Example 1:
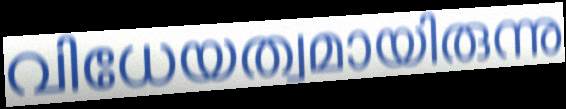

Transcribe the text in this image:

വിധേയത്വമായിരുന്നു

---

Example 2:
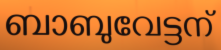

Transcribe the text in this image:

ബാബുവേട്ടന്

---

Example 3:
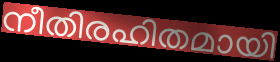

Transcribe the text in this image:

നീതിരഹിതമായി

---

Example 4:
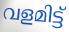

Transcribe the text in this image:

വളമിട്ട്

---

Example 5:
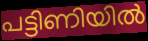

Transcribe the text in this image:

പട്ടിണിയിൽ